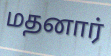
மதனார்